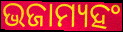
ଭଜାମ୍ୟହଂ